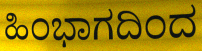
ಹಿಂಭಾಗದಿಂದ